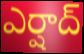
ఎర్షాద్